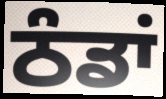
ਠੰਡਾਂ